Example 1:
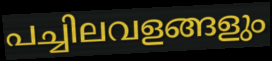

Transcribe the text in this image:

പച്ചിലവളങ്ങളും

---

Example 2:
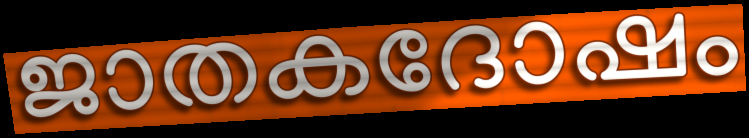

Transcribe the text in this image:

ജാതകദോഷം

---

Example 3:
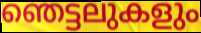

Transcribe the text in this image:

ഞെട്ടലുകളും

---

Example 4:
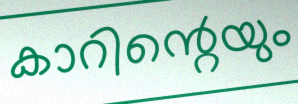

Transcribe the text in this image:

കാറിന്റെയും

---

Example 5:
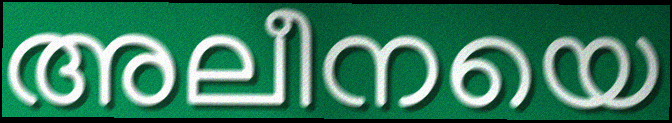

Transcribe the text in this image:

അലീനയെ